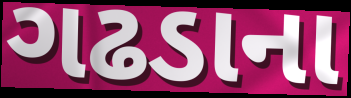
ગઢડાના